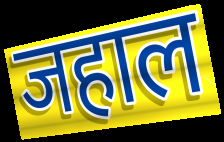
जहाल